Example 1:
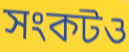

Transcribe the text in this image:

সংকটও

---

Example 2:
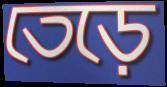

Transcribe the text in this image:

তেড়ে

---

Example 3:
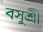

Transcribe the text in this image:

বসুশ্রী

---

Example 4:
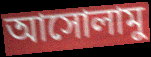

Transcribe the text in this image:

আসোলামু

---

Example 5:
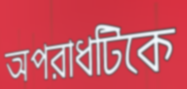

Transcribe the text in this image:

অপরাধটিকে